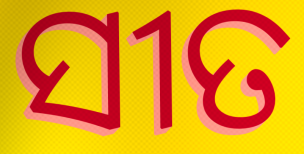
ସୀତ